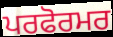
ਪਰਫੋਰਮਰ